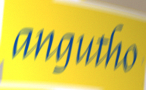
angutho